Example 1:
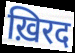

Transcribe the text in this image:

ख़िरद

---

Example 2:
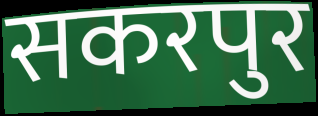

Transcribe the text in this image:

सकरपुर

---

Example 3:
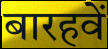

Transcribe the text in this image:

बारहवें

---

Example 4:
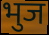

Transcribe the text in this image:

भुज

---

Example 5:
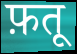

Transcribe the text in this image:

फ़तू